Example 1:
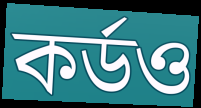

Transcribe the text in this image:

কর্ডও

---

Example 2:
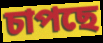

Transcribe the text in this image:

চাপছে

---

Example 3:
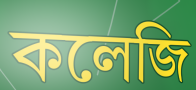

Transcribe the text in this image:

কলেজি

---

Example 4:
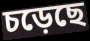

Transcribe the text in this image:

চড়েছে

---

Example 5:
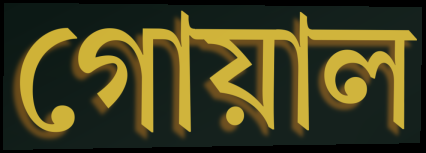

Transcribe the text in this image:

গোয়াল